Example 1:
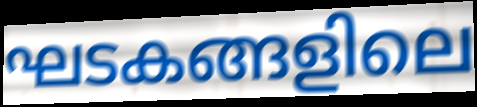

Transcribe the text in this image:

ഘടകങ്ങളിലെ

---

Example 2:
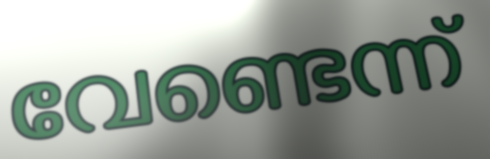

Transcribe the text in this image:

വേണ്ടെന്ന്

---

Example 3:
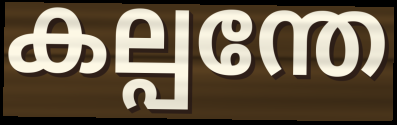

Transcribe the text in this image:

കല്പന്തേ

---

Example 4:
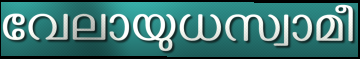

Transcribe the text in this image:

വേലായുധസ്വാമീ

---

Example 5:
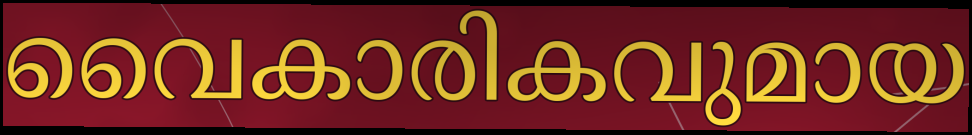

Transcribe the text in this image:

വൈകാരികവുമായ